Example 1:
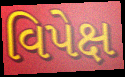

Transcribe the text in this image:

વિપેક્ષ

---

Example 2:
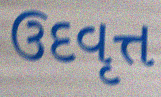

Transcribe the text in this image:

ઉદવૃત્ત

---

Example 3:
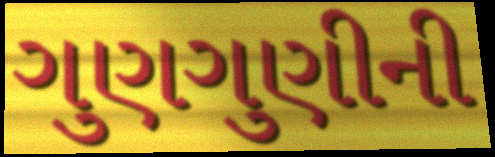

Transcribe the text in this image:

ગુણગુણીની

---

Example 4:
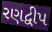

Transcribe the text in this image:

રણદ્વીપ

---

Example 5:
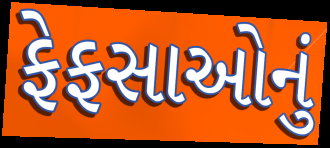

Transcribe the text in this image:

ફેફસાઓનું